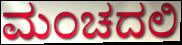
ಮಂಚದಲಿ